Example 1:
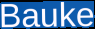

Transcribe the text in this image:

Bauke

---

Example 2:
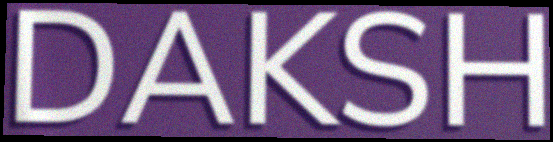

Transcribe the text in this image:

DAKSH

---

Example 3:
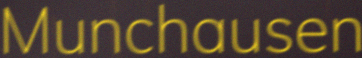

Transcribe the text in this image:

Munchausen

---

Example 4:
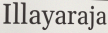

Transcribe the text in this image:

Illayaraja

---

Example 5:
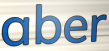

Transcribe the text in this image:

aber